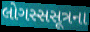
લોગસ્સસૂત્રના